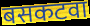
बसकटवा